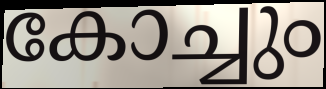
കോച്ചും